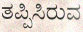
ತಪ್ಪಿಸಿರುವ